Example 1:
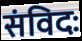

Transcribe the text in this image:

संविदः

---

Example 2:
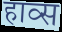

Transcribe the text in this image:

हाव्स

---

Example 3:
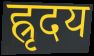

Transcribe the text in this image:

ह्रृदय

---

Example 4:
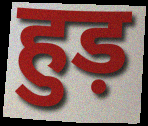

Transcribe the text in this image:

हुड़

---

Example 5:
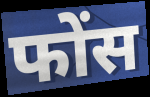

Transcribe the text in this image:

फोंस